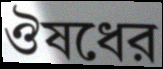
ঔষধের